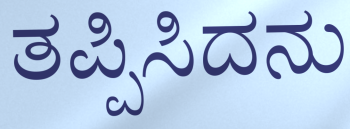
ತಪ್ಪಿಸಿದನು